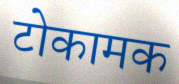
टोकामक